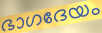
ഭാഗദേയം